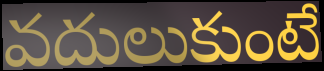
వదులుకుంటే